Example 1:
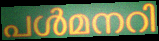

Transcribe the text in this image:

പൾമനറി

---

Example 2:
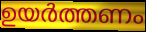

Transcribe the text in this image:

ഉയർത്തണം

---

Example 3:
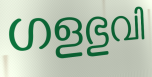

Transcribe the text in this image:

ഗളഭുവി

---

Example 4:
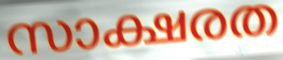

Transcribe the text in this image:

സാക്ഷരത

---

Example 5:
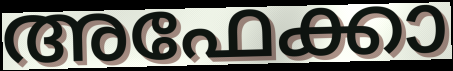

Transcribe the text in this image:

അഫേക്കാ